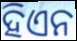
ହିଏନ